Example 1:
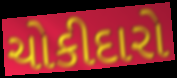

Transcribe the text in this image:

ચોકીદારો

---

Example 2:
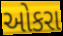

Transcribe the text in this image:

ઓકરા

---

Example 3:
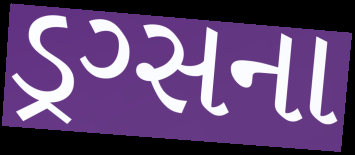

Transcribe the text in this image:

ડ્રગ્સના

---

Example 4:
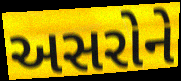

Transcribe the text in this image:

અસરોને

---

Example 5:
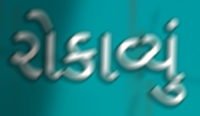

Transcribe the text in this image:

રોકાવ્યું